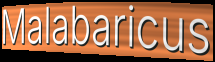
Malabaricus